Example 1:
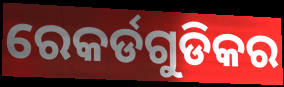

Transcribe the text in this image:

ରେକର୍ଡଗୁଡିକର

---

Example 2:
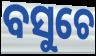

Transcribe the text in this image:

ବସୁଚେ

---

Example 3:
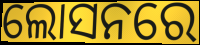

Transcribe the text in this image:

ଲୋସନରେ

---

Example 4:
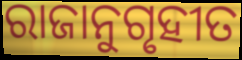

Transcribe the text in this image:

ରାଜାନୁଗୃହୀତ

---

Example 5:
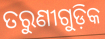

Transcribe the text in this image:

ତରୁଣୀଗୁଡ଼ିକ